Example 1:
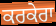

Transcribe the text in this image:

ਕਰਕੇਰਾ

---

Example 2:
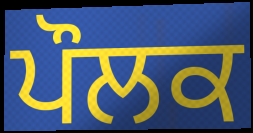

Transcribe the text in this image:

ਪੌਲਕ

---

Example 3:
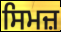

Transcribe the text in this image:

ਸਿਮਜ਼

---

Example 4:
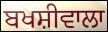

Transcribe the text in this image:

ਬਖਸ਼ੀਵਾਲਾ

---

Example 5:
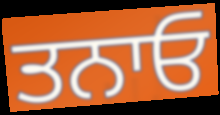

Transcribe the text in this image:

ਤਨਾਓ